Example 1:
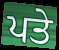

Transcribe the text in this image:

ਪਤੇ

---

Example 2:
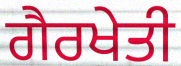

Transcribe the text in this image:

ਗੈਰਖੇਤੀ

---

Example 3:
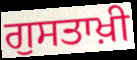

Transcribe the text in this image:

ਗੁਸਤਾਖ਼ੀ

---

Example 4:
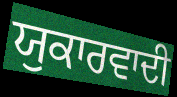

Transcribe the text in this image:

ਯੁਕਾਰਵਾਦੀ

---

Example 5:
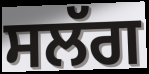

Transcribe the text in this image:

ਸਲੱਗ